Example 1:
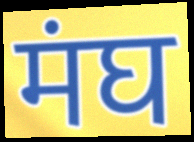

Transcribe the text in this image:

मंघ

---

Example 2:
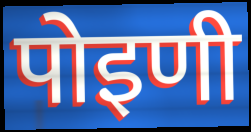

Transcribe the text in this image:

पोइणी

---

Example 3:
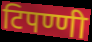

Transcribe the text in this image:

टिपण्णी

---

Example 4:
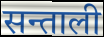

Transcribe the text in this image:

सन्ताली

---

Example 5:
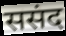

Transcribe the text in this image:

ससंद